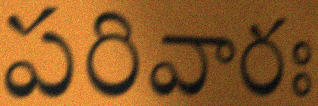
పరివారః